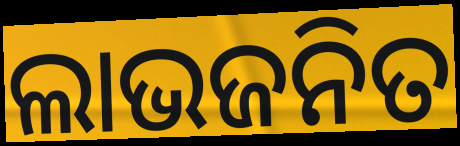
ଲାଭଜନିତ